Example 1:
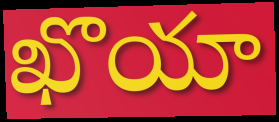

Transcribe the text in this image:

ఖొయా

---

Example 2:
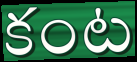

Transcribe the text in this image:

కంట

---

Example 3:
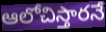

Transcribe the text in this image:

ఆలోచిస్తారనే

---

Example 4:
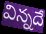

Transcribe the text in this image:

విన్నదే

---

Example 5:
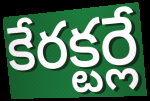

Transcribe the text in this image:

కేరక్టర్లే